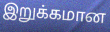
இறுக்கமான